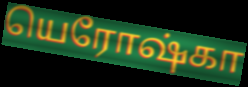
யெரோஷ்கா